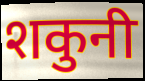
शकुनी